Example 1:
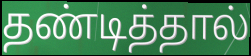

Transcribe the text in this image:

தண்டித்தால்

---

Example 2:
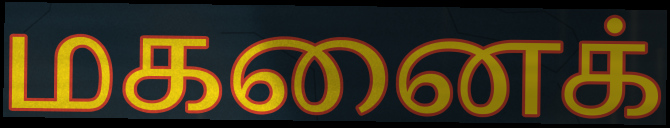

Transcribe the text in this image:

மகனைக்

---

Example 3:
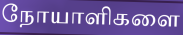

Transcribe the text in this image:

நோயாளிகளை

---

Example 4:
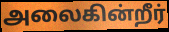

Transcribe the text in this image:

அலைகின்றீர்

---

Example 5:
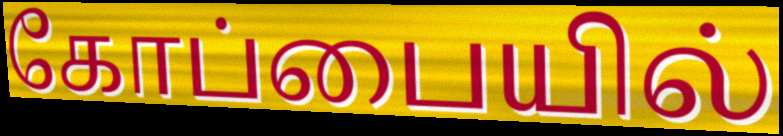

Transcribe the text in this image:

கோப்பையில்